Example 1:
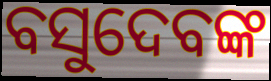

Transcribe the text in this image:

ବସୁଦେବଙ୍କ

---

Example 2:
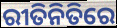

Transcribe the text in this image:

ରୀତିନିତିରେ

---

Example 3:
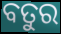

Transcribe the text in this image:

ବତୁର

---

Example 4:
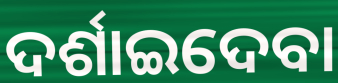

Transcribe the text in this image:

ଦର୍ଶାଇଦେବା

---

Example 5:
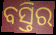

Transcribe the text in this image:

ବସ୍ତିର